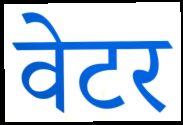
वेटर